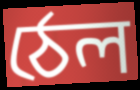
ঠেল